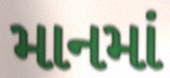
માનમાં